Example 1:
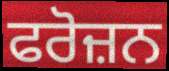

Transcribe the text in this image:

ਫਰੋਜ਼ਨ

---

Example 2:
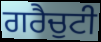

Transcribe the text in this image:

ਗਰੈਚੁਟੀ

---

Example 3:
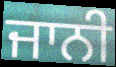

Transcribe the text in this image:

ਜਾਨੀ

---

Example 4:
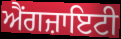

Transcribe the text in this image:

ਐਂਗਜ਼ਾਇਟੀ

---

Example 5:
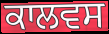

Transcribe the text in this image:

ਕਾਲਵਸ